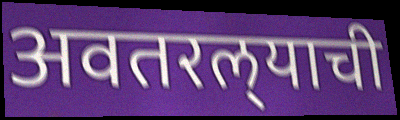
अवतरल्याची